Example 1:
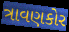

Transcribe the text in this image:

ત્રાવણકોર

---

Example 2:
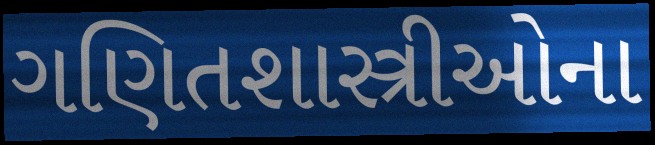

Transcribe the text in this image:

ગણિતશાસ્ત્રીઓના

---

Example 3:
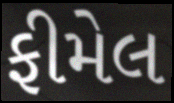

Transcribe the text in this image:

ફીમેલ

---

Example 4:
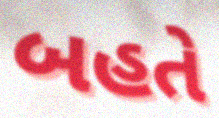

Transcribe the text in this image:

બહતે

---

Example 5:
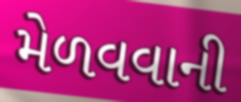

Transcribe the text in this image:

મેળવવાની